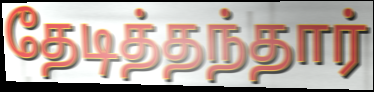
தேடித்தந்தார்